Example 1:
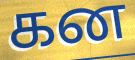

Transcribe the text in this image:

கன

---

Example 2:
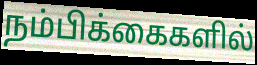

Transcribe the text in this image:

நம்பிக்கைகளில்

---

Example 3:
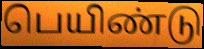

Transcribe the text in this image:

பெயிண்டு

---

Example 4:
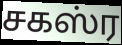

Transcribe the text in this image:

சகஸ்ர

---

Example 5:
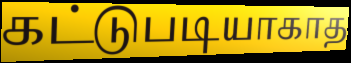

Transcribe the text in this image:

கட்டுபடியாகாத